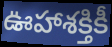
ఊహాశక్తికీ